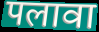
पलावा